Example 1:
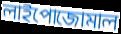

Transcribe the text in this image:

লাইপোজোমাল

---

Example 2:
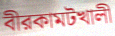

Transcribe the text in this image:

বীরকামটখালী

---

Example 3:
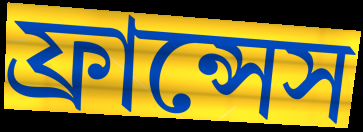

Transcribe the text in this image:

ফ্রান্সেস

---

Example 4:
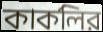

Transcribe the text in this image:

কার্কলির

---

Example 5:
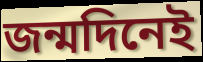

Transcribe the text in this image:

জন্মদিনেই